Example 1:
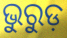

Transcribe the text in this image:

ଭୁରୁଡ଼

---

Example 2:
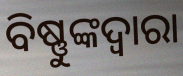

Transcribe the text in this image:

ବିଷ୍ଣୁଙ୍କଦ୍ୱାରା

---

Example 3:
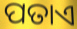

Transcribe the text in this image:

ପତାଏ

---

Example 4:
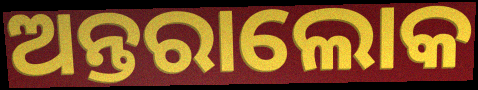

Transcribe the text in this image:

ଅନ୍ତରାଲୋକ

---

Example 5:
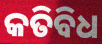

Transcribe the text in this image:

କତିବିଧ